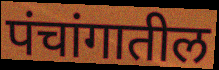
पंचांगातील